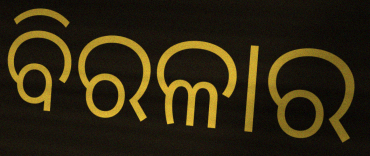
ବିରଳାର